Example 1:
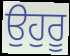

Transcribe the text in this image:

ਉਹੁਰੂ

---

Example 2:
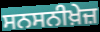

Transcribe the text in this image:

ਸਨਸਨੀਖ਼ੇਜ਼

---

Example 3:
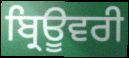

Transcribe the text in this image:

ਬ੍ਰਿਊਵਰੀ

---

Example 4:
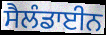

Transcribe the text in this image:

ਸੈਲੰਡਾਈਨ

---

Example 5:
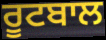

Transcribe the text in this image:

ਰੂਟਬਾਲ